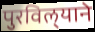
पुरविल्याने